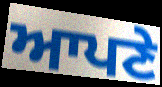
ਆਪਣੇ